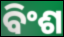
ବିଂଶ